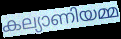
കല്യാണിയമ്മ